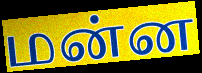
மன்ன